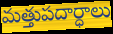
మత్తుపదార్ధాలు